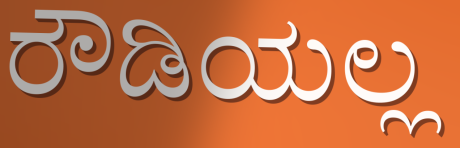
ರೌಡಿಯಲ್ಲ